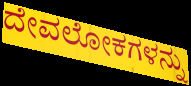
ದೇವಲೋಕಗಳನ್ನು